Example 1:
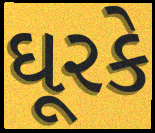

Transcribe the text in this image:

ઘૂરકે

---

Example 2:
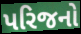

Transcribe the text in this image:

પરિજનો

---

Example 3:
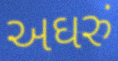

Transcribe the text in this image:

અઘરું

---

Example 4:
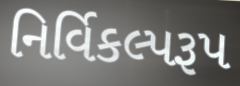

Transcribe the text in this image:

નિર્વિકલ્પરૂપ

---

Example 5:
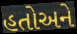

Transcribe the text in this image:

હતોઅને